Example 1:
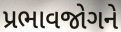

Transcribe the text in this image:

પ્રભાવજોગને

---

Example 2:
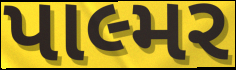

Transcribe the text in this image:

પાલ્મર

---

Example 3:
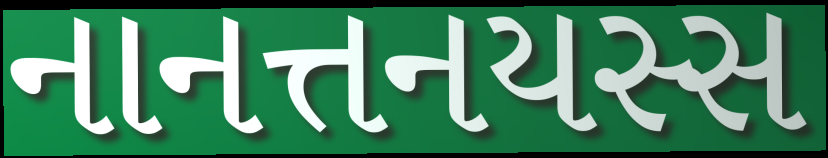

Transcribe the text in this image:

નાનત્તનયસ્સ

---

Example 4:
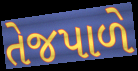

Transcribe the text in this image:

તેજપાળે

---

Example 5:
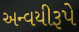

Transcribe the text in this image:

અન્વયીરૂપે